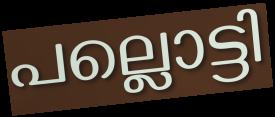
പല്ലൊട്ടി